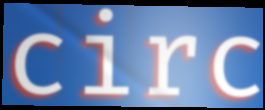
circ